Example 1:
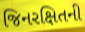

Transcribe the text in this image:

જિનરક્ષિતની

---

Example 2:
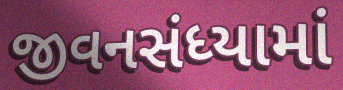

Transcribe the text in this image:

જીવનસંધ્યામાં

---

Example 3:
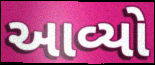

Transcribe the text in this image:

આવ્યો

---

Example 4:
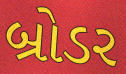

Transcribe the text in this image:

બ્રોડર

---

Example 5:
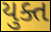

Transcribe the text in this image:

યુક્ત